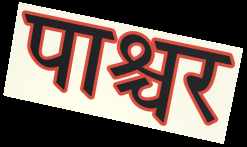
पाश्चर